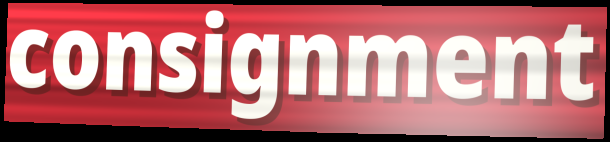
consignment